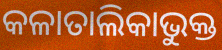
କଳାତାଲିକାଭୁକ୍ତ